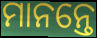
ମାନନ୍ତେ